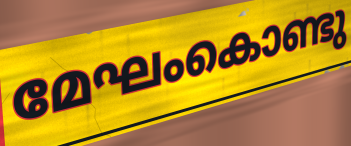
മേഘംകൊണ്ടു